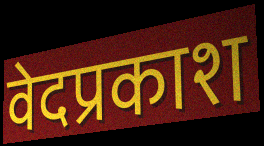
वेदप्रकाश